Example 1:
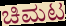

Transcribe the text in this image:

ಚಿಮಟ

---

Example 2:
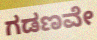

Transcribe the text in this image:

ಗಡಣವೇ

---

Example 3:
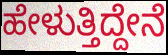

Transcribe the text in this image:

ಹೇಳುತ್ತಿದ್ದೇನೆ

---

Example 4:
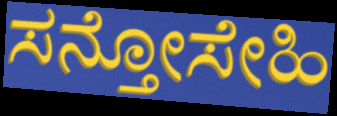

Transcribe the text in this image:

ಸನ್ತೋಸೇಹಿ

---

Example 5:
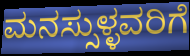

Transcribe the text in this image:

ಮನಸ್ಸುಳ್ಳವರಿಗೆ